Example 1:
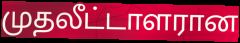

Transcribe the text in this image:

முதலீட்டாளரான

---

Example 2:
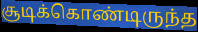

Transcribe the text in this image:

சூடிக்கொண்டிருந்த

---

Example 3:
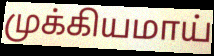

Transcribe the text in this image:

முக்கியமாய்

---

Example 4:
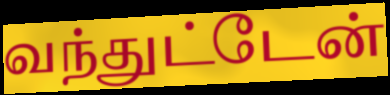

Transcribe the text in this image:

வந்துட்டேன்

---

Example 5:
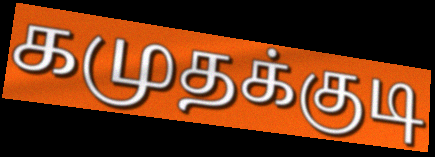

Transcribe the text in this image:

கமுதக்குடி